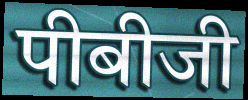
पीबीजी